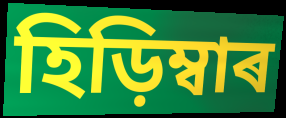
হিড়িম্বাৰ